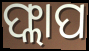
ଫ୍ଲାପ